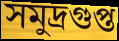
সমুদ্রগুপ্ত